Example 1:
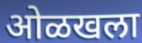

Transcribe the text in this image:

ओळखला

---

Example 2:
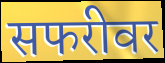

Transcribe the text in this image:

सफरीवर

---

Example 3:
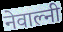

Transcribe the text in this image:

नेवाल्नी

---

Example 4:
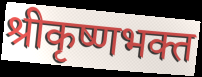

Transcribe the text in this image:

श्रीकृष्णभक्त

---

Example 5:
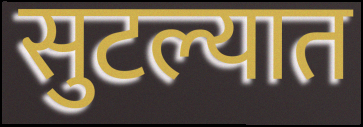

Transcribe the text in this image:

सुटल्यात